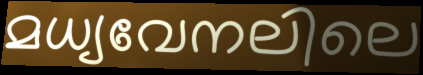
മധ്യവേനലിലെ